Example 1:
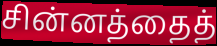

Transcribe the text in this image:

சின்னத்தைத்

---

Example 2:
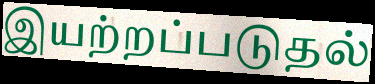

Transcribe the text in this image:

இயற்றப்படுதல்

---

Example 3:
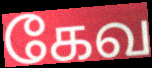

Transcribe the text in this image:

கேவ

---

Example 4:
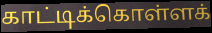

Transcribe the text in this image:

காட்டிக்கொள்ளக்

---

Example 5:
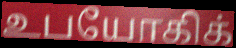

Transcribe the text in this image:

உபயோகிக்